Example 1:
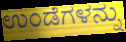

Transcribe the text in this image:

ಉಂಡೆಗಳನ್ನು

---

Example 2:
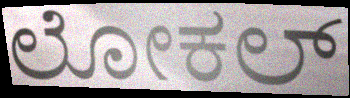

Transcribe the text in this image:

ಲೋಕಲ್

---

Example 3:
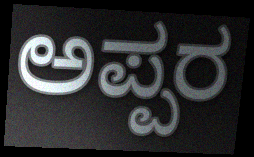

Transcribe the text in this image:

ಅಪ್ಪರ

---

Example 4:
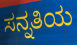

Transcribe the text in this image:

ಸನ್ನತಿಯ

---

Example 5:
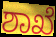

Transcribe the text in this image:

ಶಾಖೆ